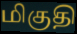
மிகுதி